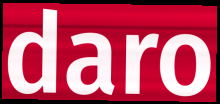
daro